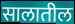
सालातील